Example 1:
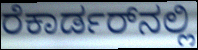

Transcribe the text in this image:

ರೆಕಾರ್ಡರ್‌ನಲ್ಲಿ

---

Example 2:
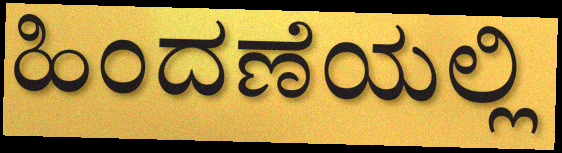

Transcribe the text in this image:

ಹಿಂದಣೆಯಲ್ಲಿ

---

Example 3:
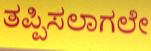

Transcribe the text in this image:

ತಪ್ಪಿಸಲಾಗಲೇ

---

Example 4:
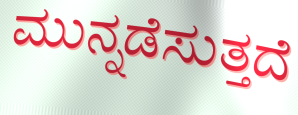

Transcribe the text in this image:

ಮುನ್ನಡೆಸುತ್ತದೆ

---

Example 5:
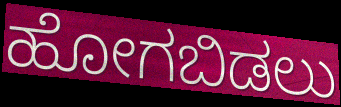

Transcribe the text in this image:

ಹೋಗಬಿಡಲು